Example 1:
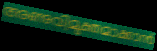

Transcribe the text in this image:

അണുവിമുക്തമാക്കാൻ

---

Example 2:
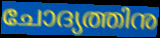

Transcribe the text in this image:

ചോദ്യത്തിനു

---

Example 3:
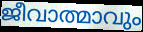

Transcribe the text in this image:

ജീവാത്മാവും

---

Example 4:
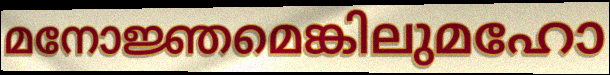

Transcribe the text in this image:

മനോജ്ഞമെങ്കിലുമഹോ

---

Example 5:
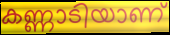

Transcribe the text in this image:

കണ്ണാടിയാണ്